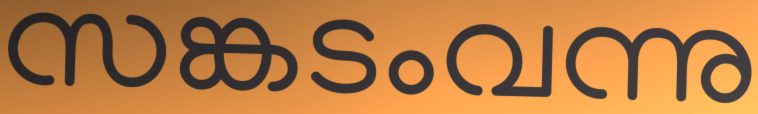
സങ്കടംവന്നു